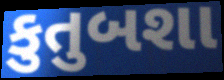
કુતુબશા